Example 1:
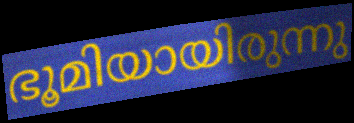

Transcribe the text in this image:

ഭൂമിയായിരുന്നു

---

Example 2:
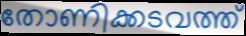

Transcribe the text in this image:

തോണിക്കടവത്ത്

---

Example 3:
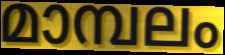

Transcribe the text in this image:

മാമ്പലം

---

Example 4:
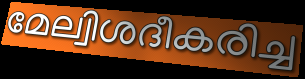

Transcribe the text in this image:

മേല്വിശദീകരിച്ച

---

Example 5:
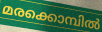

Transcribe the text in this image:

മരക്കൊമ്പിൽ